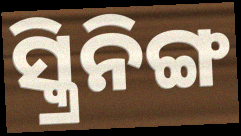
ସ୍କ୍ରିନିଙ୍ଗ